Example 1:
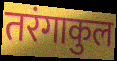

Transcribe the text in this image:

तरंगाकुल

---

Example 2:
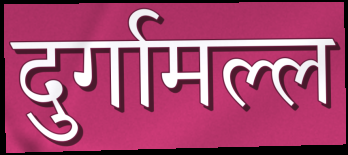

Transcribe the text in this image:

दुर्गामल्ल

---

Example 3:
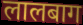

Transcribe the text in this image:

लालबाग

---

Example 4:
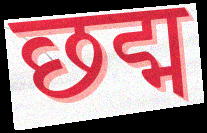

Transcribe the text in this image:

छद्म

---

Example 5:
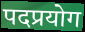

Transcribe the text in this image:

पदप्रयोग